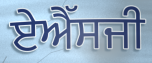
ਏਐੱਸਜੀ